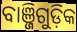
ବାଞ୍ଜିଗୁଡ଼ିକ